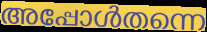
അപ്പോൾതന്നെ